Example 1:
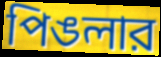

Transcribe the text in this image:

পিঙলার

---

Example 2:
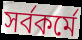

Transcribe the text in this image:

সর্বকর্মে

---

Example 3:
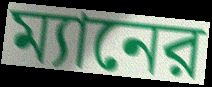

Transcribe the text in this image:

ম্যানের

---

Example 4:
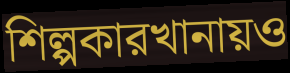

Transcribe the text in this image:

শিল্পকারখানায়ও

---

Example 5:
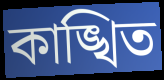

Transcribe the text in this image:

কাঙ্খিত